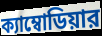
ক্যাম্বোডিয়ার